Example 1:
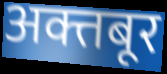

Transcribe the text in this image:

अक्तबूर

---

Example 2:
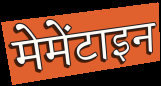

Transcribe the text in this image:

मेमेंटाइन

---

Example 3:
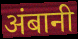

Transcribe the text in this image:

अंबानी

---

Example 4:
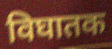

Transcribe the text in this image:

विघातक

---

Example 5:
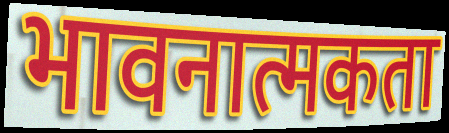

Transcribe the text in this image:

भावनात्मकता